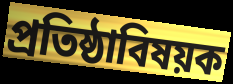
প্রতিষ্ঠাবিষয়ক